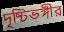
দৃষ্টিভঙ্গীর